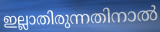
ഇല്ലാതിരുന്നതിനാൽ